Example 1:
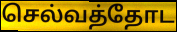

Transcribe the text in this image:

செல்வத்தோட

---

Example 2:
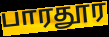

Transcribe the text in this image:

பாரதூர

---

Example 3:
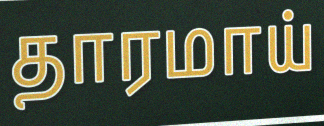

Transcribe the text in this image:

தாரமாய்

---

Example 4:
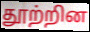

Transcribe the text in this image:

தூற்றின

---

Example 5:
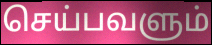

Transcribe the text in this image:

செய்பவளும்